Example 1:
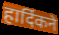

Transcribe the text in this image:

हार्दिकने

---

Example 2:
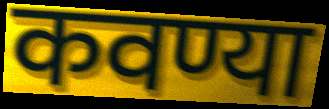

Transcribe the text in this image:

कवण्या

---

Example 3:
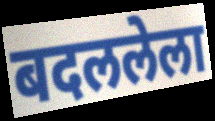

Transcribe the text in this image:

बदललेला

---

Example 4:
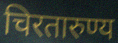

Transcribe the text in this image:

चिरतारुण्य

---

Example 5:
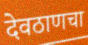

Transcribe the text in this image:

देवठाणचा